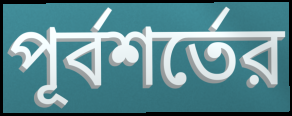
পূর্বশর্তের